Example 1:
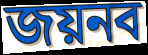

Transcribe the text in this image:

জয়নব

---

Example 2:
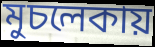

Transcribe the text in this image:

মুচলেকায়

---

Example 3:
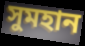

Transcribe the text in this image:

সুমহান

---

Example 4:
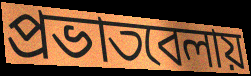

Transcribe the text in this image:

প্রভাতবেলায়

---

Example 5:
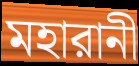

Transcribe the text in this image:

মহারানী